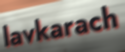
lavkarach